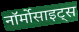
नॉर्मोसाइट्स